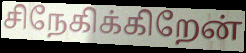
சிநேகிக்கிறேன்